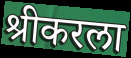
श्रीकरला